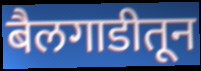
बैलगाडीतून